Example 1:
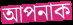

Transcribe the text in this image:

আপনাক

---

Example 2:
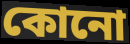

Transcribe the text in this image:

কোনো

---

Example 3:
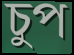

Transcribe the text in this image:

চুপ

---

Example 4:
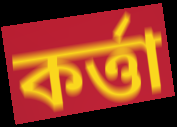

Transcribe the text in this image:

কৰ্ত্তা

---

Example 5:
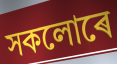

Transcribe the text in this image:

সকলোৰে